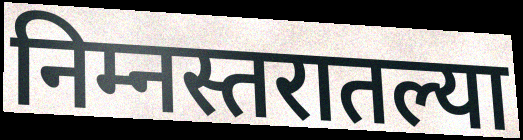
निम्नस्तरातल्या